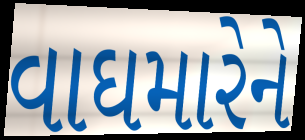
વાઘમારેને